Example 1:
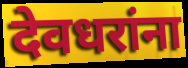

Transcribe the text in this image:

देवधरांना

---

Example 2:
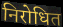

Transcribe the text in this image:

निरोधित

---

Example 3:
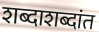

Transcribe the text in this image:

शब्दाशब्दांत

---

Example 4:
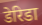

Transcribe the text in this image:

डेरिडा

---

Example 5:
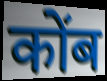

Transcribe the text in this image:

कोंब